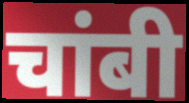
चांबी